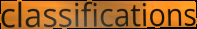
classifications